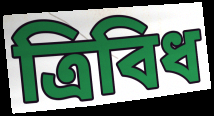
ত্রিবিধ